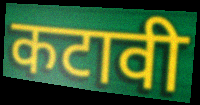
कटावी